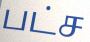
பட்ச